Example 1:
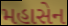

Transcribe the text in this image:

મહાસેન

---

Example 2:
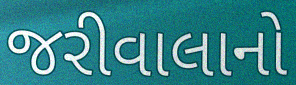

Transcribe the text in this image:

જરીવાલાનો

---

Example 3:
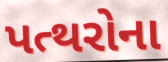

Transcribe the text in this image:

પત્થરોના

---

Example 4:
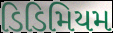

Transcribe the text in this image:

ડિડિમિયમ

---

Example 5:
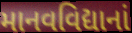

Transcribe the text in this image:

માનવવિદ્યાનાં